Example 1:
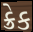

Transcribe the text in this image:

ક્રેક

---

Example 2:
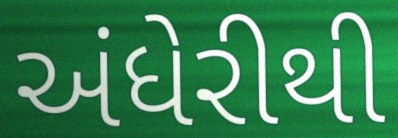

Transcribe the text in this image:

અંધેરીથી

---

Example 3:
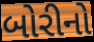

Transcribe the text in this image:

બોરીનો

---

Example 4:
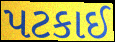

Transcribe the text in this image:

પટકાઈ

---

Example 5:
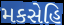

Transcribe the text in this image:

મકસેહિ